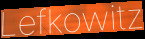
Lefkowitz